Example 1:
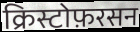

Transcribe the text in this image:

क्रिस्टोफ़रसन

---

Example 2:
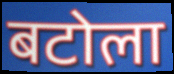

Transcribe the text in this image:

बटोला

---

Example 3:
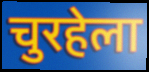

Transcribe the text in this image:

चुरहेला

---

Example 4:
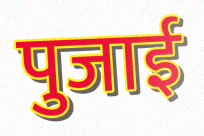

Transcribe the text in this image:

पुजाई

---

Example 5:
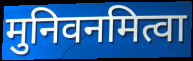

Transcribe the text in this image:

मुनिवनमित्वा